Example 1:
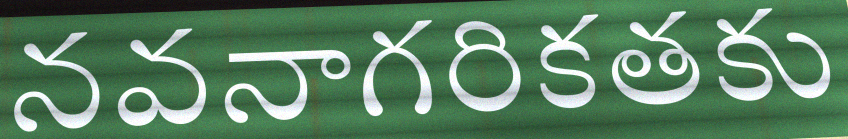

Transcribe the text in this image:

నవనాగరికతకు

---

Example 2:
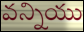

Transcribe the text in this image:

వన్నియు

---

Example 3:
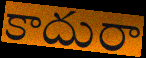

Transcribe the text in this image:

కాదురా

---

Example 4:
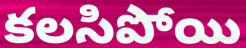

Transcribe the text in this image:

కలసిపోయి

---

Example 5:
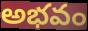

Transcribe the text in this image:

అభవం